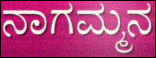
ನಾಗಮ್ಮನ